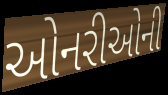
ઓનરીઓની